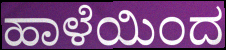
ಹಾಳೆಯಿಂದ